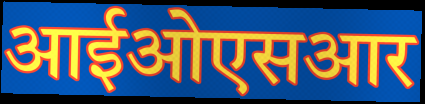
आईओएसआर